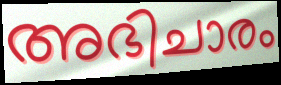
അഭിചാരം